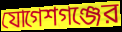
যোগেশগঞ্জের